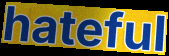
hateful